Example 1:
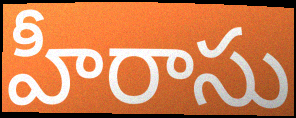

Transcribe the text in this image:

హీరాసు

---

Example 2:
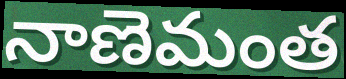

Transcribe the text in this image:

నాణెమంత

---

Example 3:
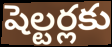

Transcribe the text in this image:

షెల్టర్లకు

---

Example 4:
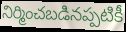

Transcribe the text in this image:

నిర్మించబడినప్పటికీ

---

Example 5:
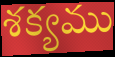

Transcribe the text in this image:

శక్యము